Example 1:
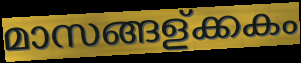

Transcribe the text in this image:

മാസങ്ങള്ക്കകം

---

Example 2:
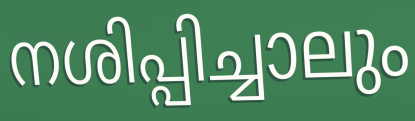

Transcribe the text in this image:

നശിപ്പിച്ചാലും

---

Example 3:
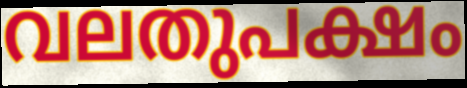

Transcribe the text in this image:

വലതുപക്ഷം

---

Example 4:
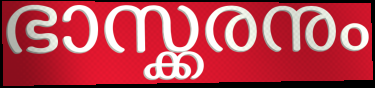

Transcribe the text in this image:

ഭാസ്ക്കരനും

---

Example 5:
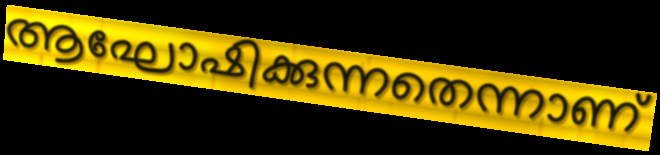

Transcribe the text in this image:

ആഘോഷിക്കുന്നതെന്നാണ്